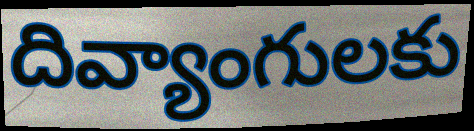
దివ్యాంగులకు